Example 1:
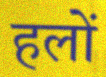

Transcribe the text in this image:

हलों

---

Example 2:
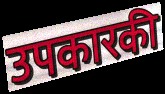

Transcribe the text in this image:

उपकारकी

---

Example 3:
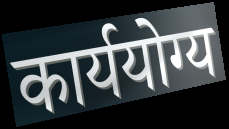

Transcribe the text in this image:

कार्ययोग्य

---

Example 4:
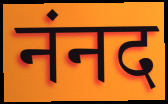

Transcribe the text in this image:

नंनद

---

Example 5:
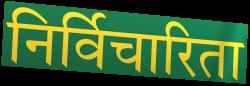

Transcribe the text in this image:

निर्विचारिता